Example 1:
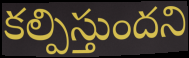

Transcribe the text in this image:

కల్పిస్తుందని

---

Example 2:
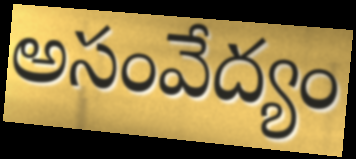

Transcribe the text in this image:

అసంవేద్యం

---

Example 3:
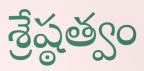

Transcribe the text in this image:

శ్రేష్ఠత్వం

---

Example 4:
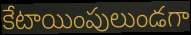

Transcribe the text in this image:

కేటాయింపులుండగా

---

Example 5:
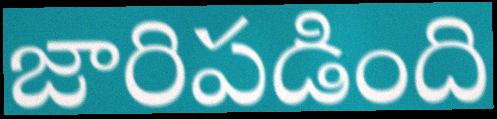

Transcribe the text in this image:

జారిపడింది